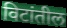
विटांतील